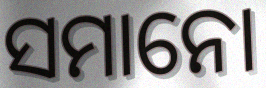
ସମାନୋ